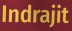
Indrajit